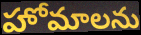
హోమాలను